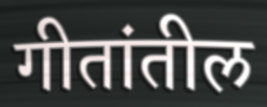
गीतांतील